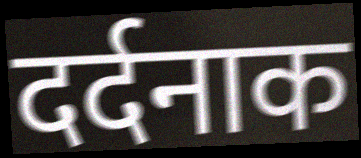
दर्दनाक